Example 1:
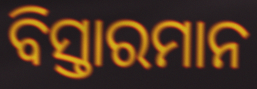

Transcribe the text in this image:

ବିସ୍ତାରମାନ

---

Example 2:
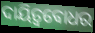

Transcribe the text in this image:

ଦାୟିତ୍ବବୋଧର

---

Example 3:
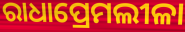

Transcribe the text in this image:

ରାଧାପ୍ରେମଲୀଳା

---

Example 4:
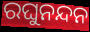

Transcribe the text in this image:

ରଘୁନନ୍ଦନ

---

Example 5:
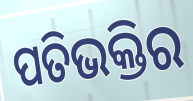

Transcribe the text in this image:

ପତିଭକ୍ତିର